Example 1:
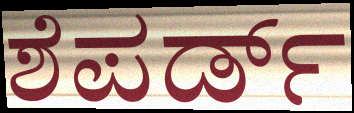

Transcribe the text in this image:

ಶೆಪರ್ಡ್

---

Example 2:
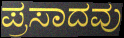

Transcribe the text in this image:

ಪ್ರಸಾದವು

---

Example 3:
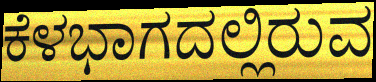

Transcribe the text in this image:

ಕೆಳಭಾಗದಲ್ಲಿರುವ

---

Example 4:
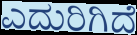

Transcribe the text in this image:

ಎದುರಿಗಿದೆ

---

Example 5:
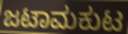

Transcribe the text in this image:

ಜಟಾಮಕುಟ